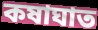
কষাঘাত